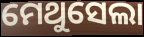
ମେଥୁସେଲା